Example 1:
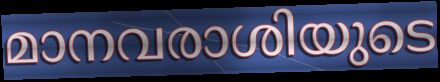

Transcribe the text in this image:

മാനവരാശിയുടെ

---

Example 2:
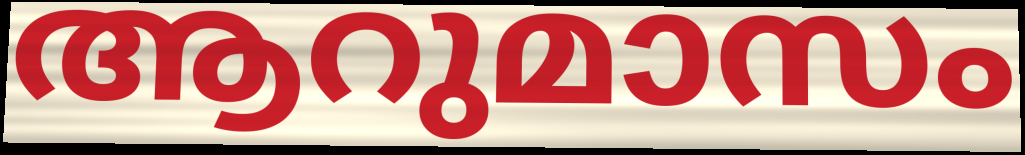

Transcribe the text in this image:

ആറുമാസം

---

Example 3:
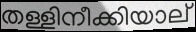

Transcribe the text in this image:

തള്ളിനീക്കിയാല്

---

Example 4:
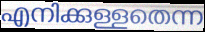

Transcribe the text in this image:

എനിക്കുള്ളതെന്ന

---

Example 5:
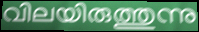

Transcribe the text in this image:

വിലയിരുത്തുന്നു